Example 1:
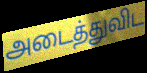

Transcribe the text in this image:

அடைத்துவிட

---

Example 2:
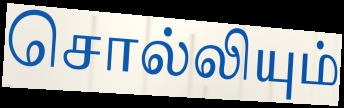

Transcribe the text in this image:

சொல்லியும்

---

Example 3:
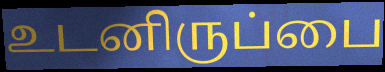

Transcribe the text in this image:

உடனிருப்பை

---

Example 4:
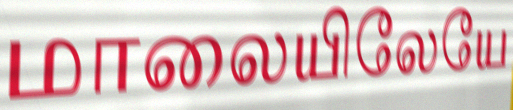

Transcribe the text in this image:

மாலையிலேயே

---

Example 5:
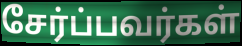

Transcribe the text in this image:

சேர்ப்பவர்கள்